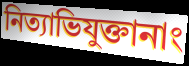
নিত্যাভিযুক্তানাং